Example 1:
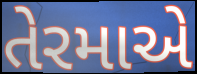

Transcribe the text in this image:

તેરમાએ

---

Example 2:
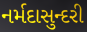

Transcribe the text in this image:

નર્મદાસુન્દરી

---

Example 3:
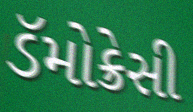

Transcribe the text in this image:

ડૅમોક્રેસી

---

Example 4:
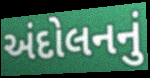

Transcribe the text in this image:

અંદોલનનું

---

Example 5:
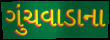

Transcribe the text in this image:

ગુંચવાડાના